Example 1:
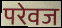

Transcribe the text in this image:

परेवज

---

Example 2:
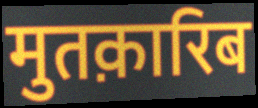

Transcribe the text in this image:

मुतक़ारिब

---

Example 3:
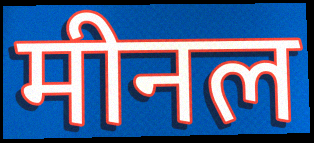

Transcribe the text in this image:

मीनल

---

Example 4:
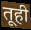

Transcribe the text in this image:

तूही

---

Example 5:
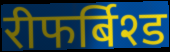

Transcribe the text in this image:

रीफर्बिश्ड